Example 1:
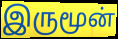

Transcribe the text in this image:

இருமூன்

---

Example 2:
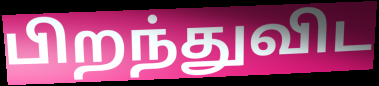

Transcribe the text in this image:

பிறந்துவிட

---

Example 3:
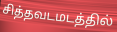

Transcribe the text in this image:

சித்தவடமடத்தில்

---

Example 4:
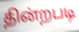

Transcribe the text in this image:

தின்றபடி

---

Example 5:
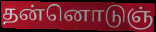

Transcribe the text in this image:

தன்னொடுஞ்